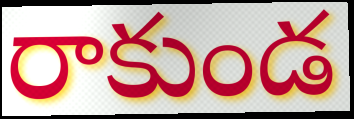
రాకుండ